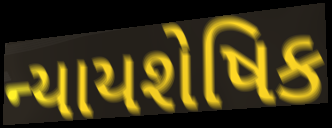
ન્યાયશેષિક